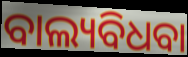
ବାଲ୍ୟବିଧବା